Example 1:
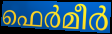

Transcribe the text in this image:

ഫെർമീർ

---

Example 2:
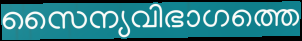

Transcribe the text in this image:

സൈന്യവിഭാഗത്തെ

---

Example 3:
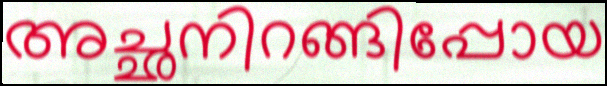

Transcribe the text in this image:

അച്ഛനിറങ്ങിപ്പോയ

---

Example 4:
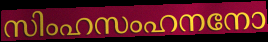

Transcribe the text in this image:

സിംഹസംഹനനോ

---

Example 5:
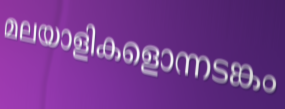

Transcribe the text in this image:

മലയാളികളൊന്നടങ്കം